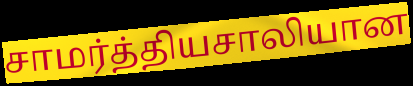
சாமர்த்தியசாலியான